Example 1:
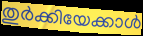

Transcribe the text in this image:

തുർക്കിയേക്കാൾ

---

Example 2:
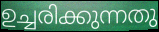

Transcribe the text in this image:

ഉച്ചരിക്കുന്നതു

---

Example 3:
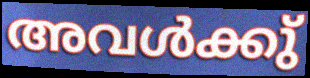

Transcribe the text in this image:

അവൾക്കു്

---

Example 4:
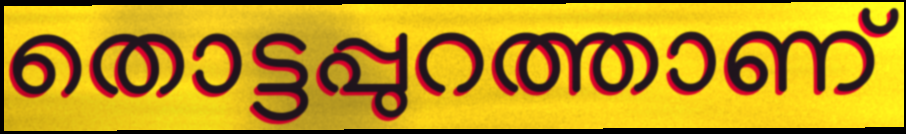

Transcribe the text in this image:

തൊട്ടപ്പുറത്താണ്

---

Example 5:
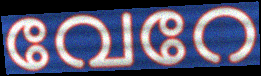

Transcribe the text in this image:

വേറേ